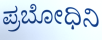
ಪ್ರಬೋಧಿನಿ